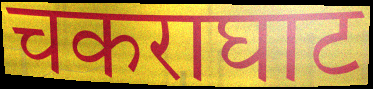
चकराघाट